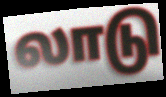
லாடு